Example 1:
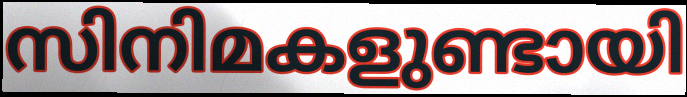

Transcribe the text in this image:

സിനിമകളുണ്ടായി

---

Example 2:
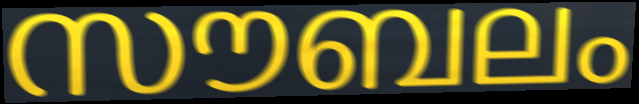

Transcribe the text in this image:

സൗബലം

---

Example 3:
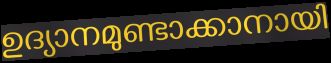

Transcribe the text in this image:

ഉദ്യാനമുണ്ടാക്കാനായി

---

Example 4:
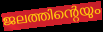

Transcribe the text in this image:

ജലത്തിന്റെയും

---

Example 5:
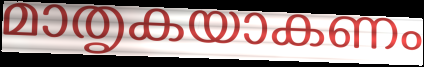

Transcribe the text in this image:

മാതൃകയാകണം